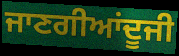
ਜਾਣਗੀਆਂਦੂਜੀ